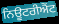
ਨਿਊਟਰੀਐਂਟ